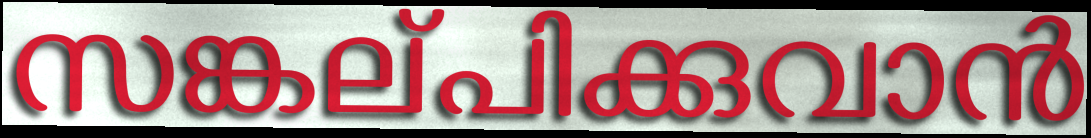
സങ്കല്‌പിക്കുവാൻ